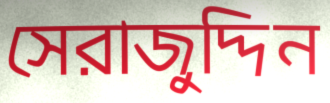
সেরাজুদ্দিন